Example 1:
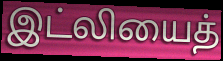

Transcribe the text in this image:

இட்லியைத்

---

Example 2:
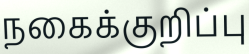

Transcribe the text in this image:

நகைக்குறிப்பு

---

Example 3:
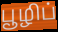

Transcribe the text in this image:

பூழிப்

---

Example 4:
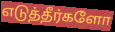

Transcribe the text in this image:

எடுத்தீர்களோ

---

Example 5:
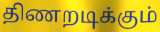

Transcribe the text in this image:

திணறடிக்கும்